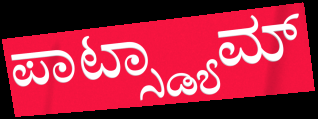
ಪಾಟ್ಸ್ಡ್ಯಾಮ್